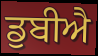
ਡੁਬੀਐ